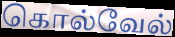
கொல்வேல்